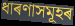
ধাৰণাসমূহৰ